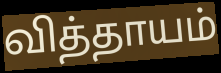
வித்தாயம்